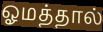
ஓமத்தால்